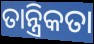
ତାନ୍ତ୍ରିକତା